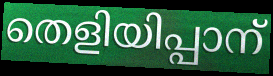
തെളിയിപ്പാന്